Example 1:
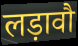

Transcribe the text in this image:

लड़ावौ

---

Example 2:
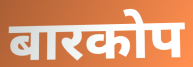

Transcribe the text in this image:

बारकोप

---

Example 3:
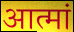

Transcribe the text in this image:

आत्मां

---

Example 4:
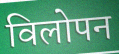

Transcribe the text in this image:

विलोपन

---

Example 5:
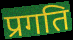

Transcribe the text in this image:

प्रगति